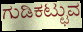
ಗುಡಿಕಟ್ಟುವ